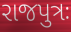
રાજપુત્રઃ